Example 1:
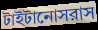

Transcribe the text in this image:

টাইটানোসরাস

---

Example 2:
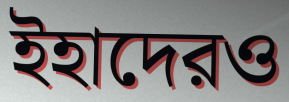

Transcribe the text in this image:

ইহাদেরও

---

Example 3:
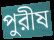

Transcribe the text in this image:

পুরীষ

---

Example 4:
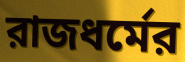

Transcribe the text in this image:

রাজধর্মের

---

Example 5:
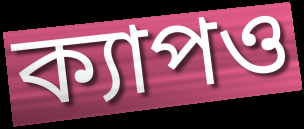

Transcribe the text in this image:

ক্যাপও